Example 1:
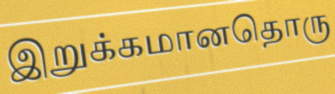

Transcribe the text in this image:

இறுக்கமானதொரு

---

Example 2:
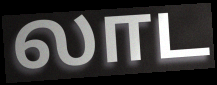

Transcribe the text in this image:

லாட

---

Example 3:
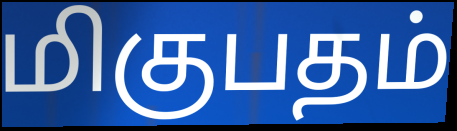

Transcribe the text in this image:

மிகுபதம்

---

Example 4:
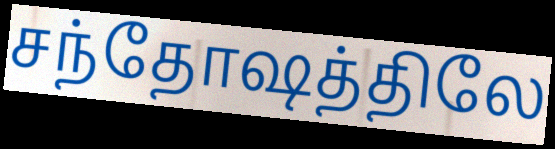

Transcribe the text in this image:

சந்தோஷத்திலே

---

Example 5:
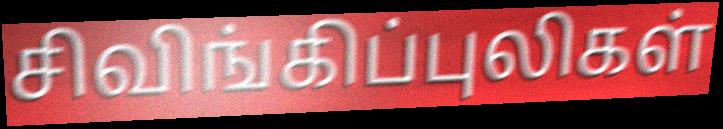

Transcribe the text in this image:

சிவிங்கிப்புலிகள்